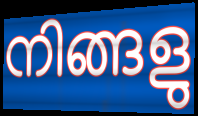
നിങ്ങളു